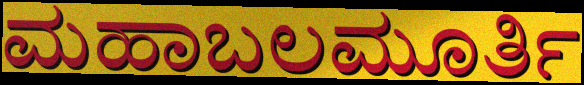
ಮಹಾಬಲಮೂರ್ತಿ